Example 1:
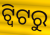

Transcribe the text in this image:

ଟ୍ବିଟରୁ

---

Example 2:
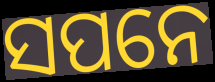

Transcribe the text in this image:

ସପନେ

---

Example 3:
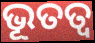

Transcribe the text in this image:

ଭୂତତ୍ୱ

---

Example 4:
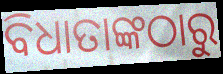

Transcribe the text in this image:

ବିଧାତାଙ୍କଠାରୁ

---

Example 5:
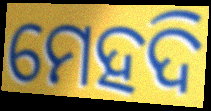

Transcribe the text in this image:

ମେହଦି